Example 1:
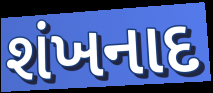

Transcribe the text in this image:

શંખનાદ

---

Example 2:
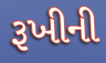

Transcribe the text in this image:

રૂખીની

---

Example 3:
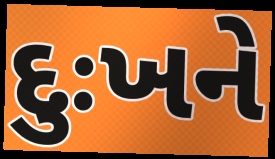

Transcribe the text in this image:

દુઃખને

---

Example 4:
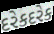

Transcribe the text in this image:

દરેકદરેક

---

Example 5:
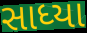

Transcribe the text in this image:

સાધ્યા